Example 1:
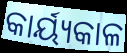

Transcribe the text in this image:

କାର୍ୟ୍ୟକାଳ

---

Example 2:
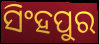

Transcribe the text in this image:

ସିଂହପୁର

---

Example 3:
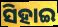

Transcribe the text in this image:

ସିହାଇ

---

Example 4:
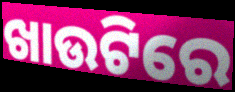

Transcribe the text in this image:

ଖାଉଟିରେ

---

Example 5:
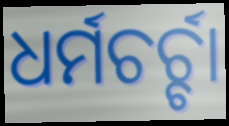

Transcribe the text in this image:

ଧର୍ମଚର୍ଚ୍ଚା